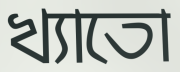
খ্যাতো